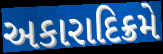
અકારાદિક્રમે